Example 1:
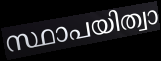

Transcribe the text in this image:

സ്ഥാപയിത്വാ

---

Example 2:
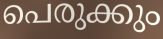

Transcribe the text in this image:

പെരുക്കും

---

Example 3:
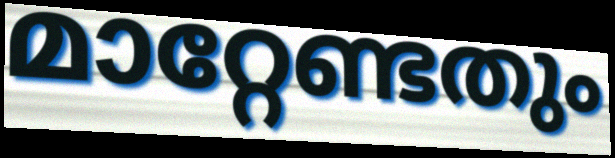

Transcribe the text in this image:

മാറ്റേണ്ടതും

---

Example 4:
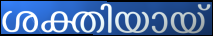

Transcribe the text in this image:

ശക്തിയായ്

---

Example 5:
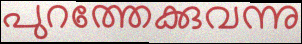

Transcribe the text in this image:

പുറത്തേക്കുവന്നു